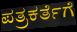
ಪತ್ರಕರ್ತೆಗೆ